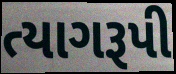
ત્યાગરૂપી